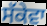
ਸੱਕੇਵਾ